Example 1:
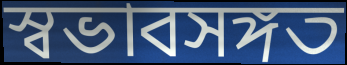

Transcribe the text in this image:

স্বভাবসঙ্গত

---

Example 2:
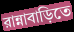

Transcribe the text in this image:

রান্নাবাড়িতে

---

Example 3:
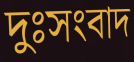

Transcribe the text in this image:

দুঃসংবাদ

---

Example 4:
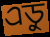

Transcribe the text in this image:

এডু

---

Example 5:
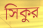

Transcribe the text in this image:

সিকুর